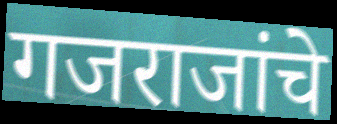
गजराजांचे